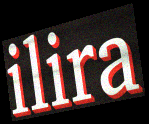
ilira